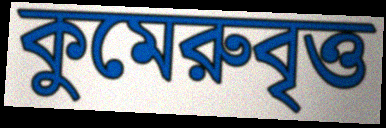
কুমেরুবৃত্ত